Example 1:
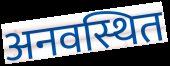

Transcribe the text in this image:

अनवस्थित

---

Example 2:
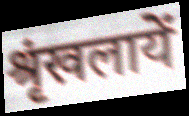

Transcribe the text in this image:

श्रृंखलायें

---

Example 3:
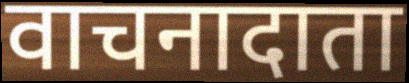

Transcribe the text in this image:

वाचनादाता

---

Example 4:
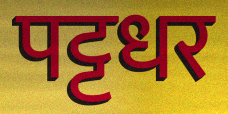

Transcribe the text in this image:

पट्टधर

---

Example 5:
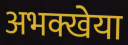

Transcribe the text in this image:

अभक्खेया